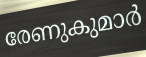
രേണുകുമാർ